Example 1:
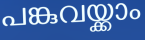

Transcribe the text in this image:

പങ്കുവയ്ക്കാം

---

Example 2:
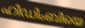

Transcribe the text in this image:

ഹിഡിംബിയെ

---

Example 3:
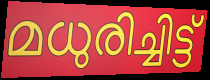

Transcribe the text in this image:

മധുരിച്ചിട്ട്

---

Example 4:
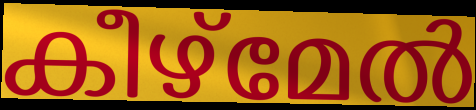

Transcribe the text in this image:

കീഴ്മേൽ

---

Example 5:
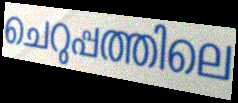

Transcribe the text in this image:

ചെറുപ്പത്തിലെ